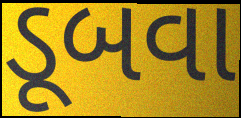
ડૂબવા